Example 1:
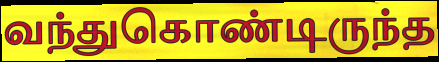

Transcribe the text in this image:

வந்துகொண்டிருந்த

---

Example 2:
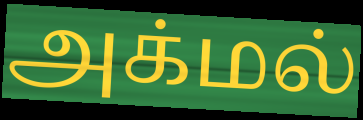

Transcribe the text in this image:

அக்மல்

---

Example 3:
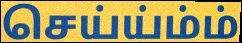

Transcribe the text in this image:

செய்ய்ம்ம்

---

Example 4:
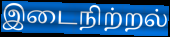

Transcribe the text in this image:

இடைநிற்றல்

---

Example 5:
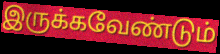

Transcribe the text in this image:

இருக்கவேண்டும்